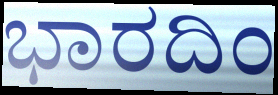
ಭಾರದಿಂ